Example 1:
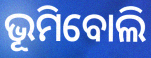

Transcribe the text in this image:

ଭୂମିବୋଲି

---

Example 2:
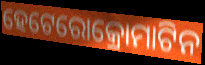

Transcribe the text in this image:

ହେଟେରୋକ୍ରୋମାଟିନ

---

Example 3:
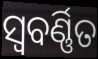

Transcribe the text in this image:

ସ୍ୱବର୍ଣ୍ଣିତ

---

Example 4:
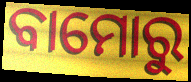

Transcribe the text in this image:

ବାମୋରୁ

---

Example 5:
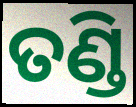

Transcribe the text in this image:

ତଣ୍ଡି